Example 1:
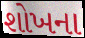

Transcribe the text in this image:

શોખના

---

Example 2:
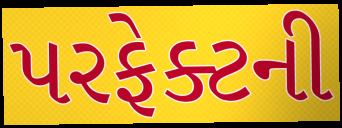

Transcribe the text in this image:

પરફેક્ટની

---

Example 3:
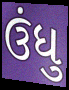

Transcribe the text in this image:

ઉંધુ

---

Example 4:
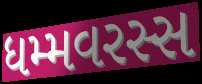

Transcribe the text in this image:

ધમ્મવરસ્સ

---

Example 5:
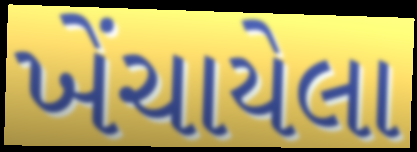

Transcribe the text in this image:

ખેંચાયેલા